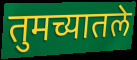
तुमच्यातले